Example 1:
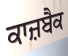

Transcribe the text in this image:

ਕਾਜ਼ਬੈਕ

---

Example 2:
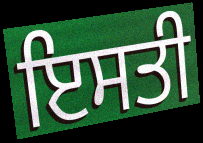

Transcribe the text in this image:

ਇਸਤੀ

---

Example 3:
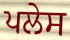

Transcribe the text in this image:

ਪਲੇਸ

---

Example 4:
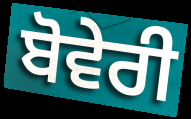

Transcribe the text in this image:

ਬੋਵੇਰੀ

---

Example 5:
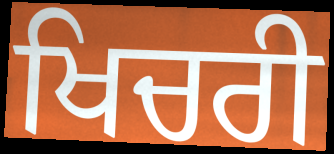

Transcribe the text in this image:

ਖਿਚਰੀ